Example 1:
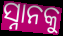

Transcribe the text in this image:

ସ୍ନାନକୁ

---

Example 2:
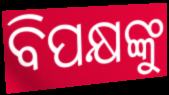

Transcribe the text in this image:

ବିପକ୍ଷଙ୍କୁ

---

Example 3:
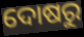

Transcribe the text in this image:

ଦୋଷରୁ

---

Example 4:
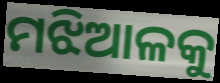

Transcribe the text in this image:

ମଝିଆଳକୁ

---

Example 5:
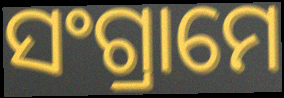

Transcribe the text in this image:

ସଂଗ୍ରାମେ